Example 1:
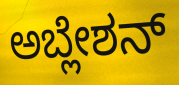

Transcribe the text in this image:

ಅಬ್ಲೇಶನ್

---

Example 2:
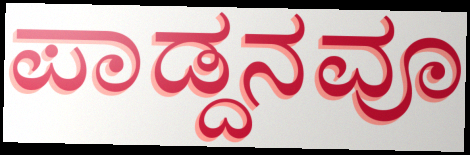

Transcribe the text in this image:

ಪಾಡ್ದನವೂ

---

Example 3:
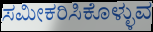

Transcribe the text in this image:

ಸಮೀಕರಿಸಿಕೊಳ್ಳುವ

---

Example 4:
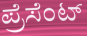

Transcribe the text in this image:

ಪ್ರೆಸೆಂಟ್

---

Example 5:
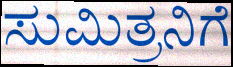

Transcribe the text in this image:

ಸುಮಿತ್ರನಿಗೆ